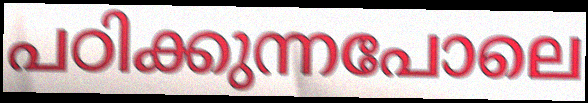
പഠിക്കുന്നപോലെ